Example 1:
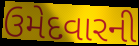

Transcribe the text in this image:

ઉમેદવારની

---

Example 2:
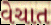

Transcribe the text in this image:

વેચાત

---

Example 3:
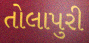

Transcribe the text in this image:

તોલાપુરી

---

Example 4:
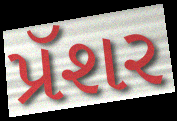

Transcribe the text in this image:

પ્રૅશર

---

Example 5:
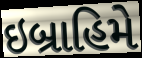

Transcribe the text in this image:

ઇબ્રાહિમે